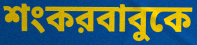
শংকরবাবুকে